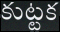
కుట్టక